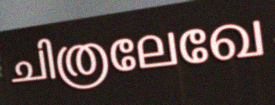
ചിത്രലേഖേ